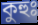
কুহুঃ